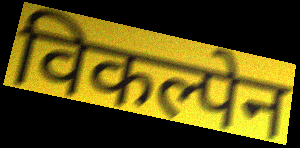
विकल्पेन